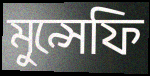
মুন্সেফি